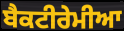
ਬੈਕਟੀਰੇਮੀਆ